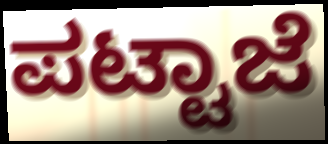
ಪಟ್ಟಾಜೆ